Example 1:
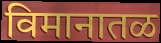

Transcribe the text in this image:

विमानातळ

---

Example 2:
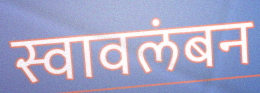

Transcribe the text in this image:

स्वावलंबन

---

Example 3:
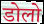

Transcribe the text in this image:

डोलो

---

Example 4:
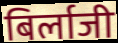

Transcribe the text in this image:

बिर्लाजी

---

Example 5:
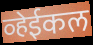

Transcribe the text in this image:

व्हेईकल